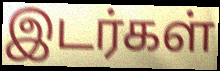
இடர்கள்